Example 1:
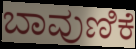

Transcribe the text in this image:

ಬಾವುಣಿಕೆ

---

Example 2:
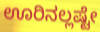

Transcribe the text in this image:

ಊರಿನಲ್ಲಷ್ಟೇ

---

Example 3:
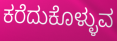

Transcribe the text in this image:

ಕರೆದುಕೊಳ್ಳುವ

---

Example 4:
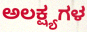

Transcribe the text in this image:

ಅಲಕ್ಷ್ಯಗಳ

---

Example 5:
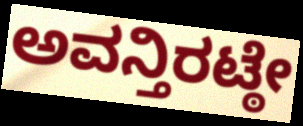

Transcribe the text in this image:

ಅವನ್ತಿರಟ್ಠೇ